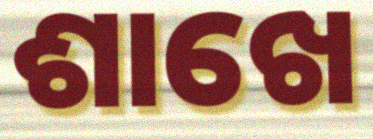
ଶାଖେ